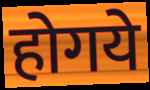
होगये